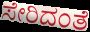
ಸೇರಿದಂತೆ